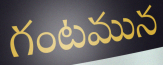
గంటమున